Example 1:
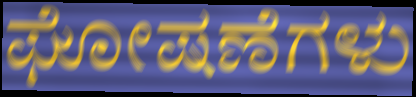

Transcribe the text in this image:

ಘೋಷಣೆಗಳು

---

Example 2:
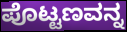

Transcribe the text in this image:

ಪೊಟ್ಟಣವನ್ನ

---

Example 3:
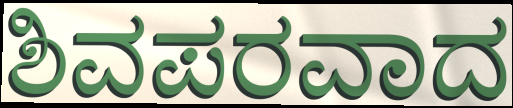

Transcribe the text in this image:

ಶಿವಪರವಾದ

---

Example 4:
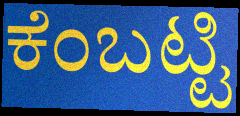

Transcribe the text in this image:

ಕೆಂಬಟ್ಟಿ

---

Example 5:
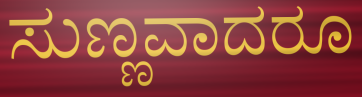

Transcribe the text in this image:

ಸುಣ್ಣವಾದರೂ